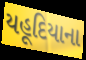
યહૂદિયાના